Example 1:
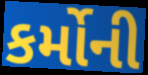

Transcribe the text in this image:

કર્મોની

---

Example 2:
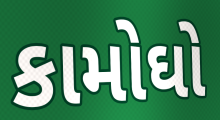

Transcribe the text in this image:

કામોઘો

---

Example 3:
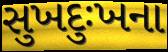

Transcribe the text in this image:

સુખદુઃખના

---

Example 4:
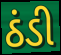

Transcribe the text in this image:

ઠંડી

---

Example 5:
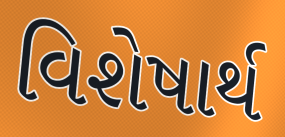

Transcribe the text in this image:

વિશેષાર્થ